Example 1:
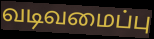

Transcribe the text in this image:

வடிவமைப்பு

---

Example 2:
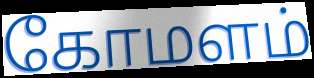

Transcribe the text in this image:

கோமளம்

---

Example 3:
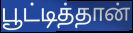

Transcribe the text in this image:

பூட்டித்தான்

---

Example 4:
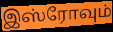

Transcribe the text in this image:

இஸ்ரோவும்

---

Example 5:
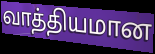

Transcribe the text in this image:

வாத்தியமான